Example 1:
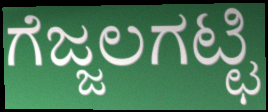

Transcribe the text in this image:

ಗೆಜ್ಜಲಗಟ್ಟಿ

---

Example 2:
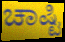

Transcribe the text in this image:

ಚಾಷ್ಟಿ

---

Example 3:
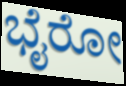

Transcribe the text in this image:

ಭೈರೋ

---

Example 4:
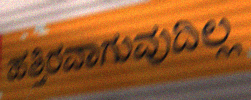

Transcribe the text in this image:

ಹತ್ತಿರವಾಗುವುದಿಲ್ಲ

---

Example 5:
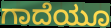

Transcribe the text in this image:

ಗಾದೆಯೂ